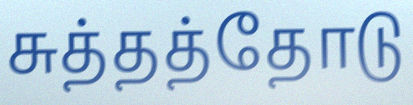
சுத்தத்தோடு